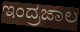
ಇಂದ್ರಜಾಲ